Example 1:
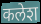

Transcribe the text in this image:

कलेश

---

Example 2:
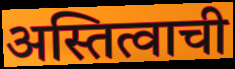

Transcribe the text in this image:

अस्तित्वाची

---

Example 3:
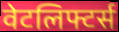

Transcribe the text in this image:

वेटलिफ्टर्स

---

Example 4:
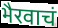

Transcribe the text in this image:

भैरवाचं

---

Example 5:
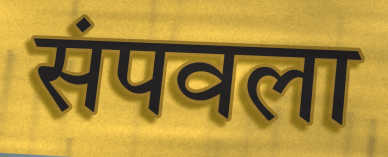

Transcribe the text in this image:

संपवला